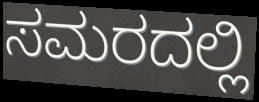
ಸಮರದಲ್ಲಿ